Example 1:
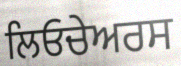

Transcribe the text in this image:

ਲਿਓਚੇਅਰਸ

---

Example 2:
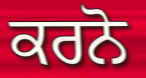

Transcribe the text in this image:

ਕਰਨੋ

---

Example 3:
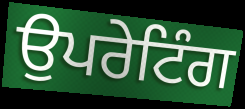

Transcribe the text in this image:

ਉਪਰੇਟਿੰਗ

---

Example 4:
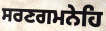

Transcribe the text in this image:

ਸਰਣਗਮਨੇਹਿ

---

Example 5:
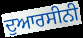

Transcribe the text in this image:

ਦੁਆਰਸੀਨੀ